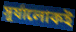
সূর্যালোকই